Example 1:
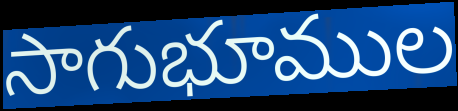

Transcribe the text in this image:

సాగుభూముల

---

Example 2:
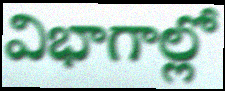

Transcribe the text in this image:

విభాగాల్లో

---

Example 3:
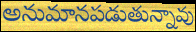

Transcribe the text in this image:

అనుమానపడుతున్నావు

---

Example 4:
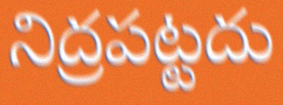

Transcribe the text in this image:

నిద్రపట్టదు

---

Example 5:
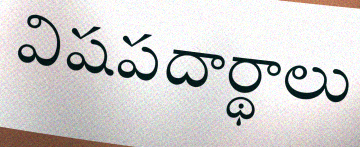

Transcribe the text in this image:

విషపదార్థాలు